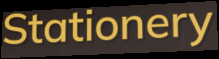
Stationery